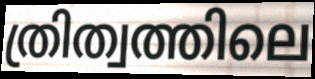
ത്രിത്വത്തിലെ